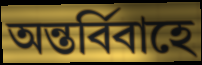
অন্তর্বিবাহে